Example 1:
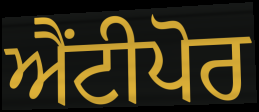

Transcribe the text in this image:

ਐਂਟੀਪੋਰ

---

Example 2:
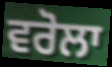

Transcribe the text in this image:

ਵਰੋਲਾ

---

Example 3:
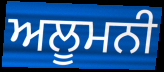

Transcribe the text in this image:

ਅਲੂਮਨੀ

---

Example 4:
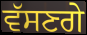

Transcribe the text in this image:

ਵੱਸਣਗੇ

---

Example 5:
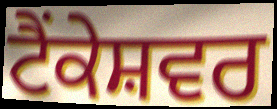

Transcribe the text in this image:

ਟੈਂਕੇਸ਼ਵਰ